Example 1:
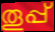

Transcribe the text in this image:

തൂപ്പ്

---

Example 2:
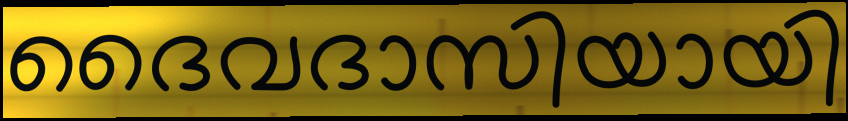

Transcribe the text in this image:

ദൈവദാസിയായി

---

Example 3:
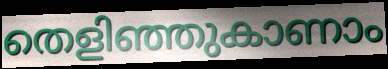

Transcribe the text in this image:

തെളിഞ്ഞുകാണാം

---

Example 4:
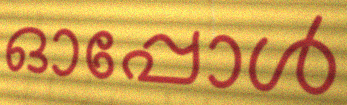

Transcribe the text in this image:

ഓപ്പോൾ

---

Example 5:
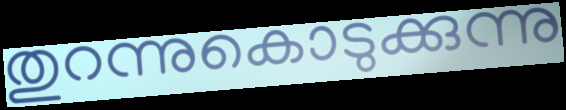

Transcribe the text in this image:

തുറന്നുകൊടുക്കുന്നു